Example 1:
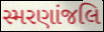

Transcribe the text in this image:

સ્મરણાંજલિ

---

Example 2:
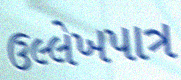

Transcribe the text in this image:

ઉલ્લેખપાત્ર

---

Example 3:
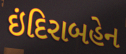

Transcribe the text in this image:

ઇંદિરાબહેન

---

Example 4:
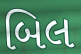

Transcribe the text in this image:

બિલ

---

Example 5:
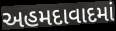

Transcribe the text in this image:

અહમદાવાદમાં